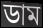
ডাম